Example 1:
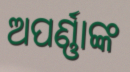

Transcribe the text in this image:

ଅପର୍ଣ୍ଣାଙ୍କ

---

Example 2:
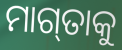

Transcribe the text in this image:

ମାଗ୍‌ତାକୁ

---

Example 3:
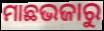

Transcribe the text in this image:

ମାଛଭଜାରୁ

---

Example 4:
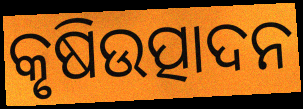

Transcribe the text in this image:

କୃଷିଉତ୍ପାଦନ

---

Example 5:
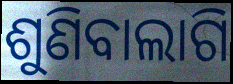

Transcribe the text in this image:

ଶୁଣିବାଲାଗି